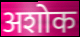
अशोक